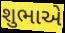
શુભાએ